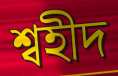
শ্বহীদ